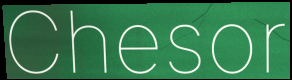
Chesor